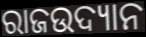
ରାଜଉଦ୍ୟାନ